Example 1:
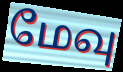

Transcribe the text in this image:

மேவு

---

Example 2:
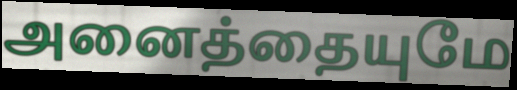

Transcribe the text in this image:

அனைத்தையுமே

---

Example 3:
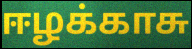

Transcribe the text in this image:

ஈழக்காசு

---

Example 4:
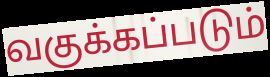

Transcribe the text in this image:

வகுக்கப்படும்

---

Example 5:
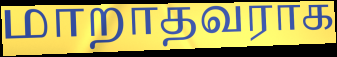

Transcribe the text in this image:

மாறாதவராக